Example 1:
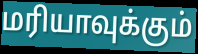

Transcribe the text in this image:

மரியாவுக்கும்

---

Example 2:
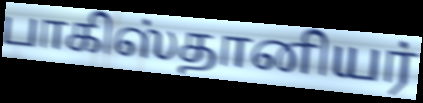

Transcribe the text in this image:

பாகிஸ்தானியர்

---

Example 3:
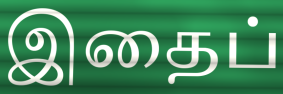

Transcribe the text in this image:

இதைப்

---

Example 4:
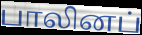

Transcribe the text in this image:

பாலினப்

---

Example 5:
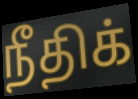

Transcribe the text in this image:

நீதிக்